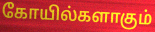
கோயில்களாகும்